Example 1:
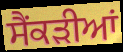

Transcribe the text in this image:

ਸੈਂਕੜੀਆਂ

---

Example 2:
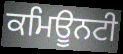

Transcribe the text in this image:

ਕਮਿਊਨਟੀ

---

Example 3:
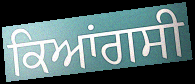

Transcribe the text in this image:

ਕਿਆਂਗਸੀ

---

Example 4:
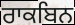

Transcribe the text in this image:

ਰਾਕਬਿਨ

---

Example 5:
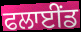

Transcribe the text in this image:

ਫਲਾਈਂਡ